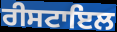
ਰੀਸਟਾਇਲ